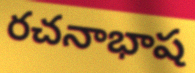
రచనాభాష